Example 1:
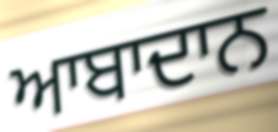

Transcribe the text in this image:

ਆਬਾਦਾਨ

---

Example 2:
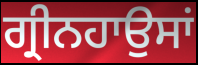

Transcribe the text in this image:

ਗ੍ਰੀਨਹਾਉਸਾਂ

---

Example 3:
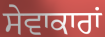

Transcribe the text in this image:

ਸੇਵਾਕਾਰਾਂ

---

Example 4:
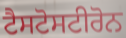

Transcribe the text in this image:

ਟੈਸਟੋਸਟੀਰੋਨ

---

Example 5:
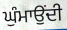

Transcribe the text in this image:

ਘੁੰਮਾਉਂਦੀ